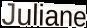
Juliane